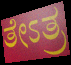
ತೇಽತ್ರ